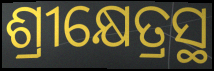
ଶ୍ରୀକ୍ଷେତ୍ରସ୍ଥ